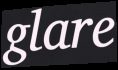
glare